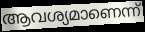
ആവശ്യമാണെന്ന്